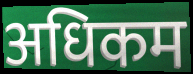
अधिकम